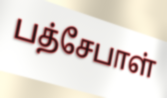
பத்சேபாள்